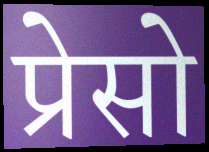
प्रेसो